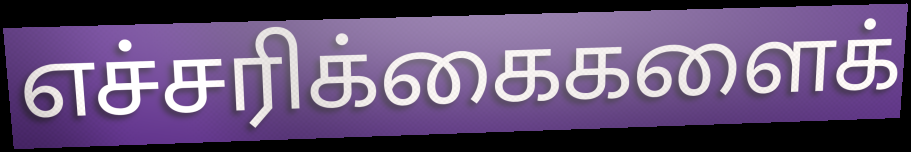
எச்சரிக்கைகளைக்